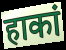
हाकां